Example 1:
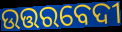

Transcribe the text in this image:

ଉତ୍ତରବେଦୀ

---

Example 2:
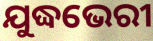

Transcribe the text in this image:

ଯୁଦ୍ଧଭେରୀ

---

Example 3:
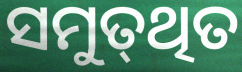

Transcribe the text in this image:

ସମୁତ୍‌ଥିତ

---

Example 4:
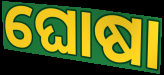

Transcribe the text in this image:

ଘୋଷା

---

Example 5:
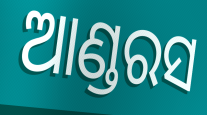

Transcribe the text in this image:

ଆଣ୍ଡରସ